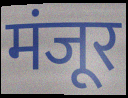
मंजूर